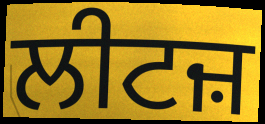
ਲੀਟਜ਼